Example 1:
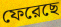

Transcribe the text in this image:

ফেরেছে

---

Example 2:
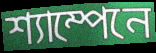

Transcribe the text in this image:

শ্যাম্পেনে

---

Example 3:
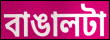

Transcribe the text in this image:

বাঙালটা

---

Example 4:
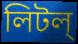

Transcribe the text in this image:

লিটল্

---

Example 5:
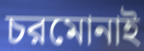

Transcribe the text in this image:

চরমোনাই